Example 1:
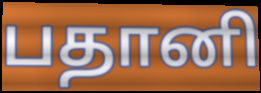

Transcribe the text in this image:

பதானி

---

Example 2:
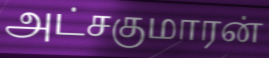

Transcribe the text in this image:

அட்சகுமாரன்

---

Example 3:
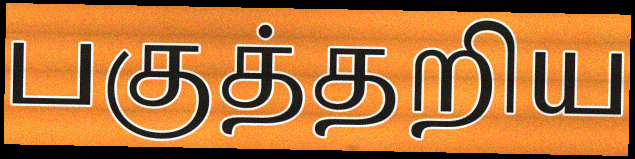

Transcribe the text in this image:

பகுத்தறிய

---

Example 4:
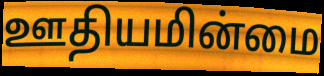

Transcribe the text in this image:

ஊதியமின்மை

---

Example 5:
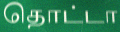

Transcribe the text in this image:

தொட்டா